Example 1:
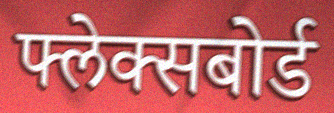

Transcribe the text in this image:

फ्लेक्सबोर्ड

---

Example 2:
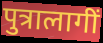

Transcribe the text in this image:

पुत्रालागीं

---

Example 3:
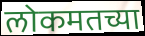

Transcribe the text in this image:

लोकमतच्या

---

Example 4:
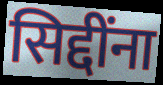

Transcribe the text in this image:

सिद्दींना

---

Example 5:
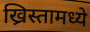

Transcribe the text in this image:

ख्रिस्तामध्ये